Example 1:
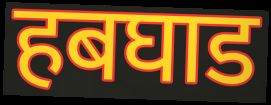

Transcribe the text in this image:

हबघाड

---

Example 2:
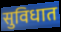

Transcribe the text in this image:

सुविधात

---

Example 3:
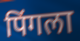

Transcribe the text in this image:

पिंगला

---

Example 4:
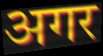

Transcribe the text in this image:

अगर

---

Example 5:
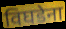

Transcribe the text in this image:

विघडेना